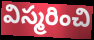
విస్మరించి